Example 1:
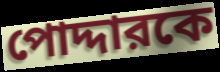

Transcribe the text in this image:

পোদ্দারকে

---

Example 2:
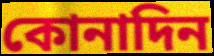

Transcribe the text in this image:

কোনাদিন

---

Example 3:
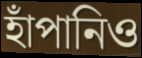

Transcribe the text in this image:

হাঁপানিও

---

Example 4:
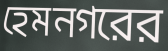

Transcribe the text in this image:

হেমনগরের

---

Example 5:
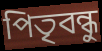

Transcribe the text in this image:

পিতৃবন্ধু